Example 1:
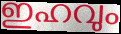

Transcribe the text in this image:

ഇഹവും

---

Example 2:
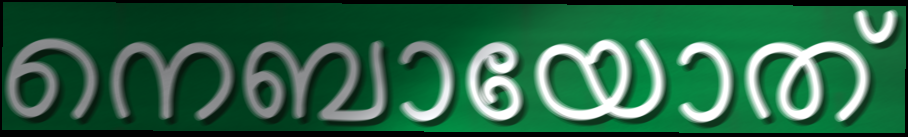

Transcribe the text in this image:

നെബായോത്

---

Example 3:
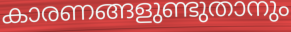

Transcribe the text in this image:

കാരണങ്ങളുണ്ടുതാനും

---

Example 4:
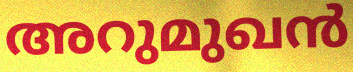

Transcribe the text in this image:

അറുമുഖൻ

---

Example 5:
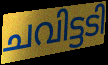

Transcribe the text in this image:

ചവിട്ടടി